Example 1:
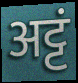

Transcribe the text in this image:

अट्टं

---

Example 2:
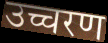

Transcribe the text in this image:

उच्चरण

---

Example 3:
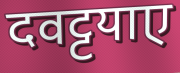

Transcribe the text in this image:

दवट्टयाए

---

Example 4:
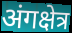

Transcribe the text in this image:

अंगक्षेत्र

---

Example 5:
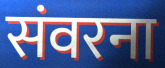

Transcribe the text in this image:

संवरना